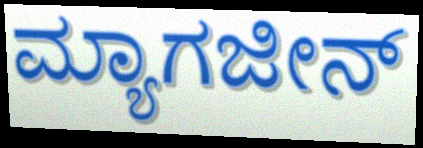
ಮ್ಯಾಗಜೀನ್